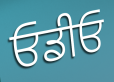
ਓਡੀਓ